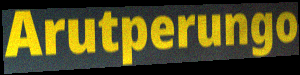
Arutperungo